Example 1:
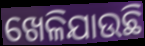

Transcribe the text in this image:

ଖେଳିଯାଉଛି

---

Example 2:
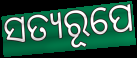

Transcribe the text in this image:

ସତ୍ୟରୂପେ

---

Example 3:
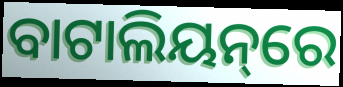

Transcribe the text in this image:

ବାଟାଲିୟନ୍‌ରେ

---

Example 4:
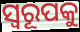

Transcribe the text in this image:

ସ୍ବରୂପକୁ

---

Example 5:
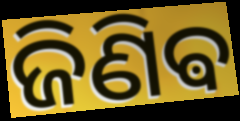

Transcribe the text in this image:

ଜିଣିଵ